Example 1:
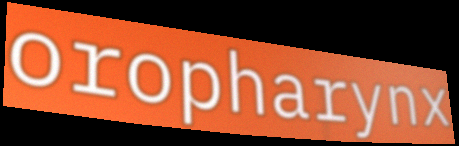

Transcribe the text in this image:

oropharynx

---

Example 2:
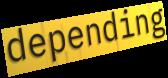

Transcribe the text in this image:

depending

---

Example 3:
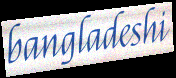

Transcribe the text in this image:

bangladeshi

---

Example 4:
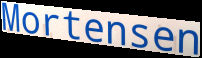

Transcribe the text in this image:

Mortensen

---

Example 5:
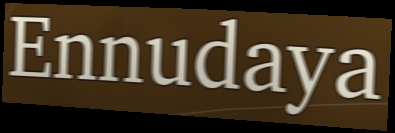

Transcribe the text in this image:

Ennudaya